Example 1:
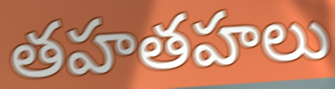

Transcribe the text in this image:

తహతహలు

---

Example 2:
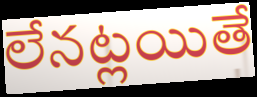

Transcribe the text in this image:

లేనట్లయితే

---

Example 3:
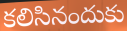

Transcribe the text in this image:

కలిసినందుకు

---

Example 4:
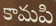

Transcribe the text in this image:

కామపి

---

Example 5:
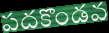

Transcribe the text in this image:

పదకొండవ